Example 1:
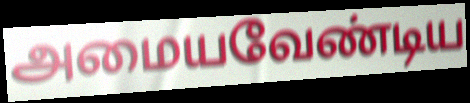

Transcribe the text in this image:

அமையவேண்டிய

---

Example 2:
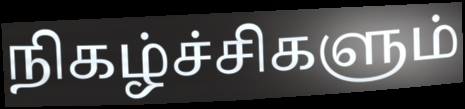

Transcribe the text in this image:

நிகழ்ச்சிகளும்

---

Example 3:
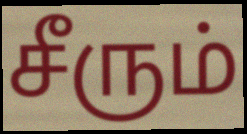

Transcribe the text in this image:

சீரும்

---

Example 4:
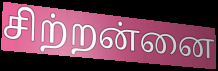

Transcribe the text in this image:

சிற்றன்னை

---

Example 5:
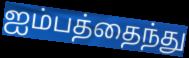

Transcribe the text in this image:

ஐம்பத்தைந்து